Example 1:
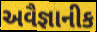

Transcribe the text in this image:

અવૈજ્ઞાનીક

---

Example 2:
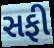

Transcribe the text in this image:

સફી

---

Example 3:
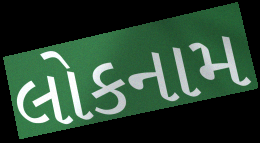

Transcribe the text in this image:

લોકનામ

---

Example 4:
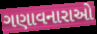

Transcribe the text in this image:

ગણાવનારાઓ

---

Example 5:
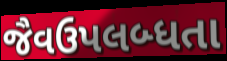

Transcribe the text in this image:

જૈવઉપલબ્ધતા